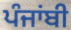
ਪੰਜਾਂਬੀ